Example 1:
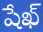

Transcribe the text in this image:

షేఖ్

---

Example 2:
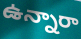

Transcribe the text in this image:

ఉన్నారా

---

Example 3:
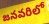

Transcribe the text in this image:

జనవరిలో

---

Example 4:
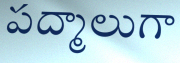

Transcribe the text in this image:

పద్మాలుగా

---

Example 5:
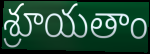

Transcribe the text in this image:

శ్రూయతాం